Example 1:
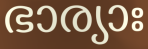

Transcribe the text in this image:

ഭാര്യാഃ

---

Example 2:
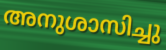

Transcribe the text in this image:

അനുശാസിച്ചു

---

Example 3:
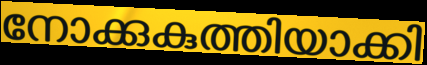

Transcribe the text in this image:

നോക്കുകുത്തിയാക്കി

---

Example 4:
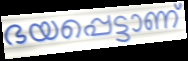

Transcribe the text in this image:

ഭയപ്പെട്ടാണ്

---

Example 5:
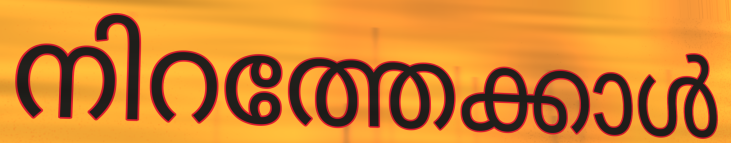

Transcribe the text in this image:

നിറത്തേക്കാൾ